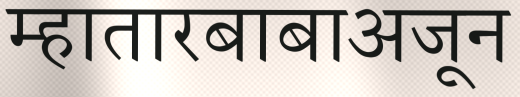
म्हातारबाबाअजून